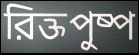
রিক্তপুষ্প